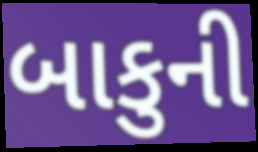
બાકુની